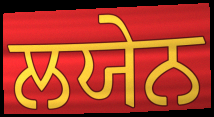
ਲਯੇਨ